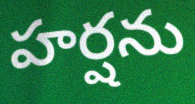
హర్షను